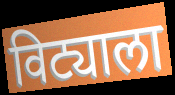
विट्याला